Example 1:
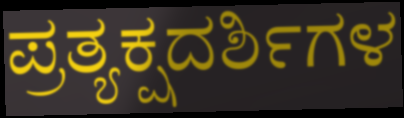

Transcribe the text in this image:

ಪ್ರತ್ಯಕ್ಷದರ್ಶಿಗಳ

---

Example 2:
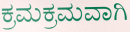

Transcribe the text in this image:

ಕ್ರಮಕ್ರಮವಾಗಿ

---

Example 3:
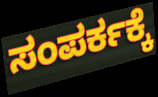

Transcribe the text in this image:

ಸಂಪರ್ಕಕ್ಕೆ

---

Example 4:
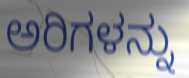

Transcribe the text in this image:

ಅರಿಗಳನ್ನು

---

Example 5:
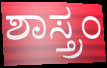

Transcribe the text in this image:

ಶಾಸ್ತ್ರಂ